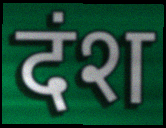
दंश